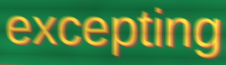
excepting